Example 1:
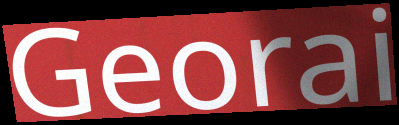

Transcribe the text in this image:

Georai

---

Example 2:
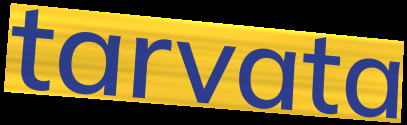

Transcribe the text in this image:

tarvata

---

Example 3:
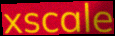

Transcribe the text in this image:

xscale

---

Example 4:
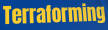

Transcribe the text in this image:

Terraforming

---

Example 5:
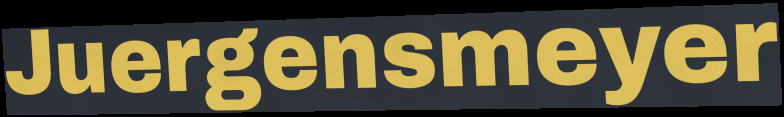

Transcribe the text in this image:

Juergensmeyer